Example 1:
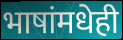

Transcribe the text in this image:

भाषांमधेही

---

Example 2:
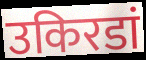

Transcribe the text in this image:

उकिरडां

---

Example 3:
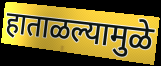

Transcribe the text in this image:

हाताळल्यामुळे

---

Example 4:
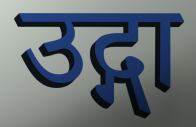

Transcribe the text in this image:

उद्गा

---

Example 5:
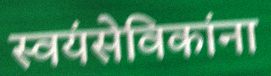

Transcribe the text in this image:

स्वयंसेविकांना